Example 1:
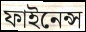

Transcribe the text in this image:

ফাইনেন্স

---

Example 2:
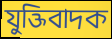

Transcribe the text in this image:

যুক্তিবাদক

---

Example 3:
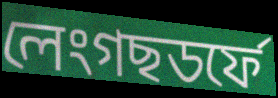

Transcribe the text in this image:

লেংগছডৰ্ফে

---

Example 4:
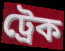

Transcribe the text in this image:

ট্ৰেক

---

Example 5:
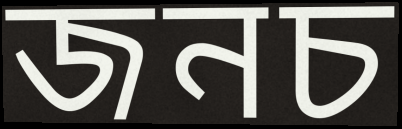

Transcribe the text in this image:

জনচ